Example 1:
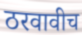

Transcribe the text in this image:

ठरवावीच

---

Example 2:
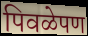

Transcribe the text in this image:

पिवळेपण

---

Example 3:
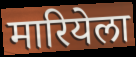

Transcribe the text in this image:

मारियेला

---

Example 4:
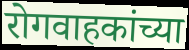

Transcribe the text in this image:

रोगवाहकांच्या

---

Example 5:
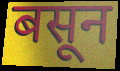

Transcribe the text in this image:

बसून